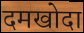
दमखोदा